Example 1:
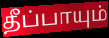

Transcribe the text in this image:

தீப்பாயும்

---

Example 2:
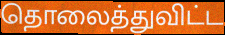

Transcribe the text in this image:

தொலைத்துவிட்ட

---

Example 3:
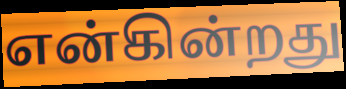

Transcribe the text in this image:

என்கின்றது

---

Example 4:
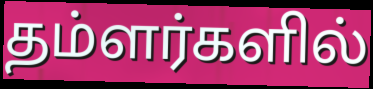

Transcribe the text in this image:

தம்ளர்களில்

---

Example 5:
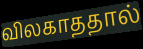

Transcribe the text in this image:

விலகாததால்